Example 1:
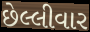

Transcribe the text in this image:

છેલ્લીવાર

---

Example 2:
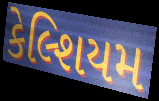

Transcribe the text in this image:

કેલ્શિયમ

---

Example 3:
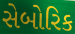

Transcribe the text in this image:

સેબોરિક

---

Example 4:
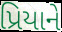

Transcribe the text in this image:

પ્રિયાને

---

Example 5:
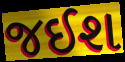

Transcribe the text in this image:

જઈશ